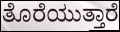
ತೊರೆಯುತ್ತಾರೆ